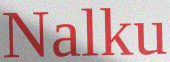
Nalku